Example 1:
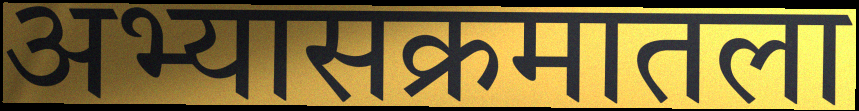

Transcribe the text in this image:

अभ्यासक्रमातला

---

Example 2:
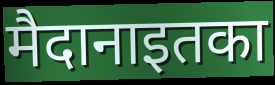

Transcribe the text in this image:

मैदानाइतका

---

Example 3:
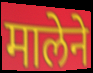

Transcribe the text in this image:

मालेने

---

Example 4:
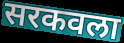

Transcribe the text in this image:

सरकवला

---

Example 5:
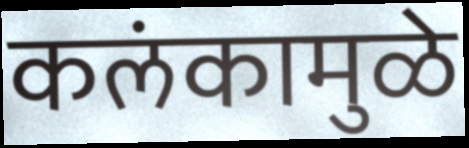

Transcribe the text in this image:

कलंकामुळे